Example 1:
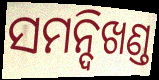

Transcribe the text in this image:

ସମନ୍ଦିଖଣ୍ଡ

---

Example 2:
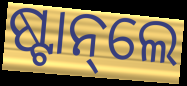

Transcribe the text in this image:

ଷ୍ଟାନ୍‌ଲେ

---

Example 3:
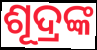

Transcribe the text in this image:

ଶୂଦ୍ରଙ୍କ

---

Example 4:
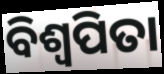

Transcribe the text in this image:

ବିଶ୍ୱପିତା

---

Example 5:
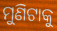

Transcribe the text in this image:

ମୁଣିଟାକୁ